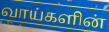
வாய்களின்